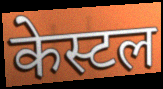
केस्टल